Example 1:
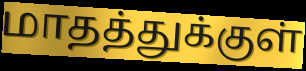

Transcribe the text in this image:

மாதத்துக்குள்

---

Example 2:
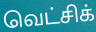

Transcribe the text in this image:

வெட்சிக்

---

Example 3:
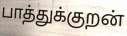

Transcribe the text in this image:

பாத்துக்குறன்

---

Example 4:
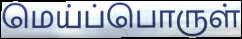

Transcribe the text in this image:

மெய்ப்பொருள்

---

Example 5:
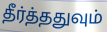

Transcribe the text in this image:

தீர்த்ததுவும்